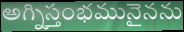
అగ్నిస్తంభమునైనను